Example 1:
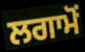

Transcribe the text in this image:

ਲਗਾਮੋਂ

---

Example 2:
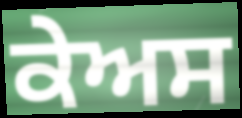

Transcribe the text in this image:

ਕੇਅਸ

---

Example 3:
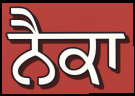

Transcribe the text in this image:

ਨੈਕਾ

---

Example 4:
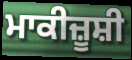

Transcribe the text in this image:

ਮਾਕੀਜ਼ੂਸ਼ੀ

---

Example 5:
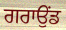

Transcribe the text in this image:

ਗਰਾਉਂਡ